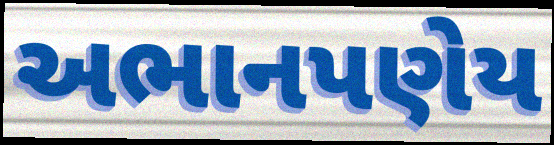
અભાનપણેય